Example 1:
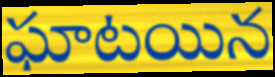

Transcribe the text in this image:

ఘాటయిన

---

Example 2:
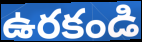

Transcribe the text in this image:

ఉరకండి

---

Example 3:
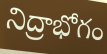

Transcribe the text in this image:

నిద్రాభోగం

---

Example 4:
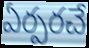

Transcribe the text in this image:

ఏర్పరచే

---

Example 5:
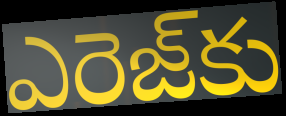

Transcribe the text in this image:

ఎరెజ్‌కు